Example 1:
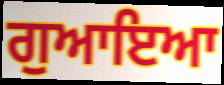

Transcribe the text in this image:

ਗੁਆਇਆ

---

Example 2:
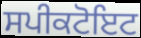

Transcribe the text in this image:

ਸਪੀਕਟੋਇਟ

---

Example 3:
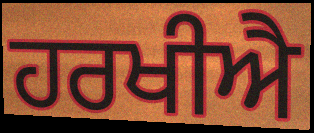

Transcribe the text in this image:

ਹਰਖੀਐ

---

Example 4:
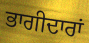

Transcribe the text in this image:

ਭਾਗੀਦਾਰਾਂ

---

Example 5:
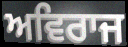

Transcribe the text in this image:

ਅਵਿਰਾਜ